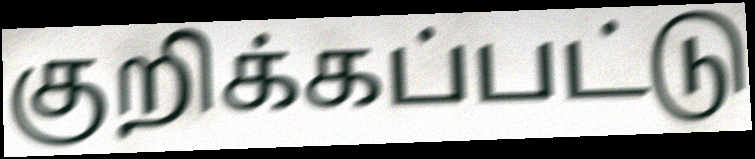
குறிக்கப்பட்டு